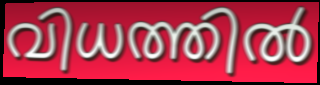
വിധത്തിൽ